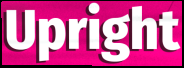
Upright